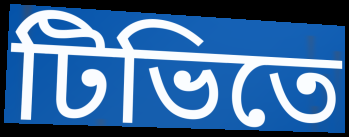
টিভিতে